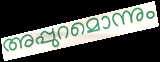
അപ്പുറമൊന്നും